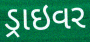
ડ્રાઇવર